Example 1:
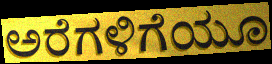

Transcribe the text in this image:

ಅರೆಗಳಿಗೆಯೂ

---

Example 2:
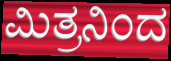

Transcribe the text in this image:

ಮಿತ್ರನಿಂದ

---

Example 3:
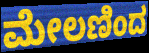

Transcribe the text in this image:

ಮೇಲಣಿಂದ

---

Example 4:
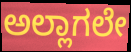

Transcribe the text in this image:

ಅಲ್ಲಾಗಲೇ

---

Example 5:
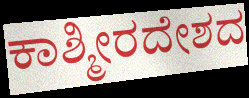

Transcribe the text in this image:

ಕಾಶ್ಮೀರದೇಶದ